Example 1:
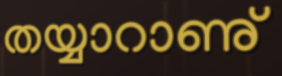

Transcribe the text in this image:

തയ്യാറാണു്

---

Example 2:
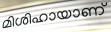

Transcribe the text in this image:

മിശിഹായാണ്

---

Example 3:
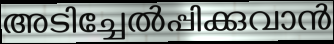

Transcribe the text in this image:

അടിച്ചേൽപ്പിക്കുവാൻ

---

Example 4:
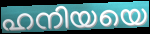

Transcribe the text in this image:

ഹനിയയെ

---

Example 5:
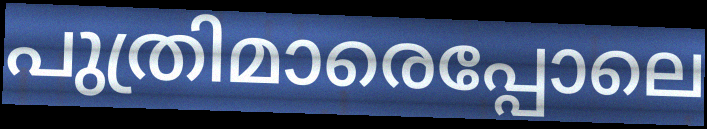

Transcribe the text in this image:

പുത്രിമാരെപ്പോലെ